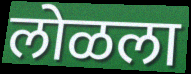
लोळला